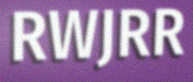
RWJRR